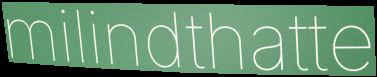
milindthatte